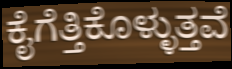
ಕೈಗೆತ್ತಿಕೊಳ್ಳುತ್ತವೆ